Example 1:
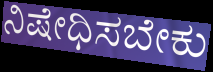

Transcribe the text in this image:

ನಿಷೇಧಿಸಬೇಕು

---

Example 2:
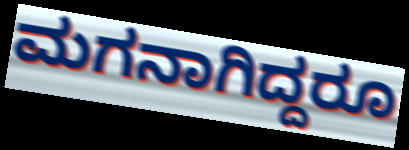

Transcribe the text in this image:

ಮಗನಾಗಿದ್ದರೂ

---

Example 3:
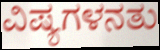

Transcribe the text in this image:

ವಿಷ್ಯಗಳನತು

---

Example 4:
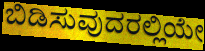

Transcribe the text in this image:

ಬಿಡಿಸುವುದರಲ್ಲಿಯೇ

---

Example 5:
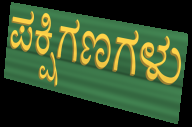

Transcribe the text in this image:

ಪಕ್ಷಿಗಣಗಳು